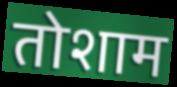
तोशाम